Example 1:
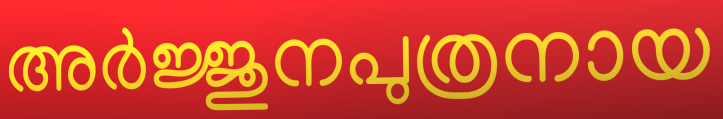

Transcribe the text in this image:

അർജ്ജുനപുത്രനായ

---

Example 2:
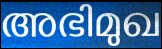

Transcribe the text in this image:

അഭിമുഖ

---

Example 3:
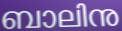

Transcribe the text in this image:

ബാലിനു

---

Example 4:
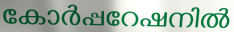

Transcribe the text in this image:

കോർപ്പറേഷനിൽ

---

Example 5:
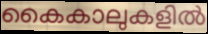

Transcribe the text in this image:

കൈകാലുകളിൽ